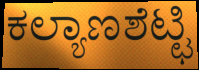
ಕಲ್ಯಾಣಶೆಟ್ಟಿ